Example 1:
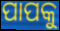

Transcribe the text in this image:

ପାପକୁ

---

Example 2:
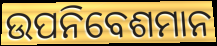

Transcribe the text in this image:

ଉପନିବେଶମାନ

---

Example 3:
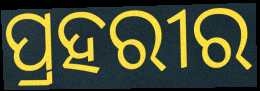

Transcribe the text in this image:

ପ୍ରହରୀର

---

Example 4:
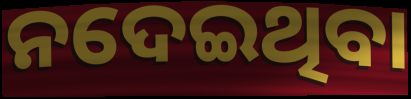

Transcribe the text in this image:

ନଦେଇଥିବା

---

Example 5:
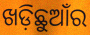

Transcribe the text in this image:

ଖଡ଼ିଛୁଆଁର